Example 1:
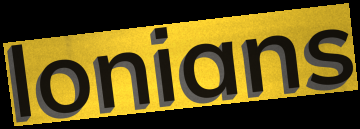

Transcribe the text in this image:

Ionians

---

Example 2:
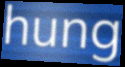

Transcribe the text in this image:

hung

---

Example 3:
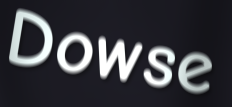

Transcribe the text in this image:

Dowse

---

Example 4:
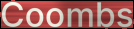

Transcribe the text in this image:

Coombs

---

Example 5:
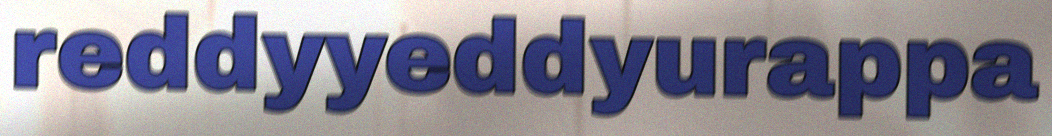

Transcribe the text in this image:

reddyyeddyurappa